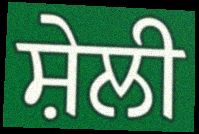
ਸ਼ੇਲੀ